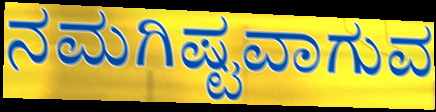
ನಮಗಿಷ್ಟವಾಗುವ